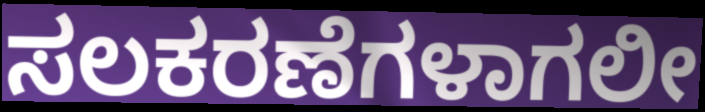
ಸಲಕರಣೆಗಳಾಗಲೀ